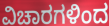
ವಿಚಾರಗಳಿಂದ